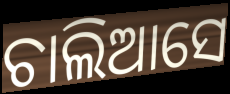
ଚାଲିଆସେ